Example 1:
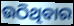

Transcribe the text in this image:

ଉଠିଥିବାର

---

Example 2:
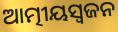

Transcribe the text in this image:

ଆତ୍ମୀୟସ୍ୱଜନ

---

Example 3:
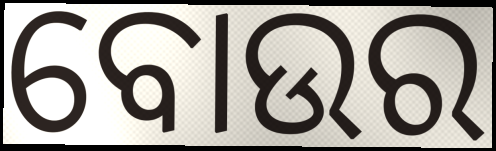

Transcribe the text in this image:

ବୋଉର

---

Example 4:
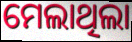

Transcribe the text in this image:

ମେଲାଥିଲା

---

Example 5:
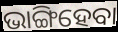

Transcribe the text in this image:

ଭାଙ୍ଗିହେବା